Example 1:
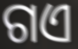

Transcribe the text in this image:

ଗଏ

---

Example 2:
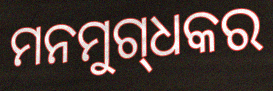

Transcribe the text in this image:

ମନମୁଗ୍‌ଧକର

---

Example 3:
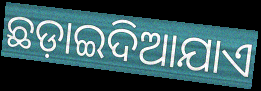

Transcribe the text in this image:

ଛଡ଼ାଇଦିଆଯାଏ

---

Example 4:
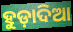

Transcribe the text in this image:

ହୁଡ଼ାଦିଆ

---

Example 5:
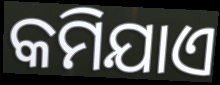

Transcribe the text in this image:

କମିଯାଏ